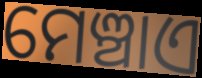
ମେଞ୍ଚାଏ